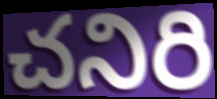
చనిరి